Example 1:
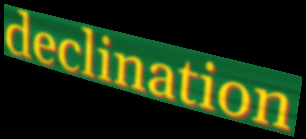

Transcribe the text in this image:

declination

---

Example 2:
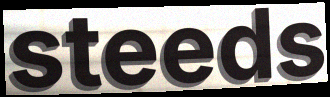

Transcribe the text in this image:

steeds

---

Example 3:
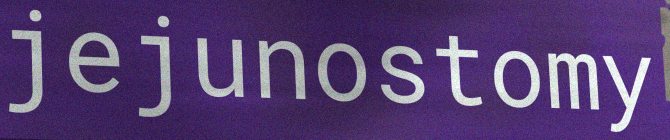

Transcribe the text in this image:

jejunostomy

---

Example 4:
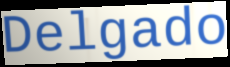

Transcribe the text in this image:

Delgado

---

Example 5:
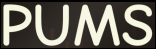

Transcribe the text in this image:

PUMS